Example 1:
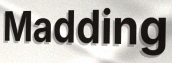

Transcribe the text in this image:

Madding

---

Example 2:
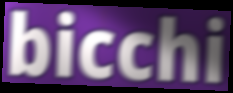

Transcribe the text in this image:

bicchi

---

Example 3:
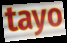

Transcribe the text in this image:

tayo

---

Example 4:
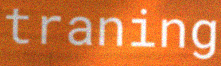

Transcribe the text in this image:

traning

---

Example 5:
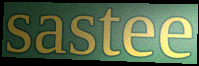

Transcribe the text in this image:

sastee